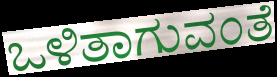
ಒಳಿತಾಗುವಂತೆ